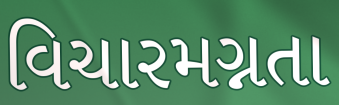
વિચારમગ્નતા